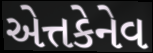
એત્તકેનેવ